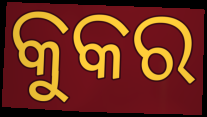
କୁକର